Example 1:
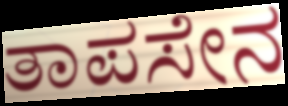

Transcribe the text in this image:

ತಾಪಸೇನ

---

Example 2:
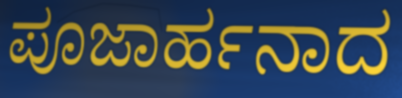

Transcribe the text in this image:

ಪೂಜಾರ್ಹನಾದ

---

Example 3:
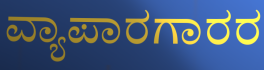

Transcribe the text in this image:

ವ್ಯಾಪಾರಗಾರರ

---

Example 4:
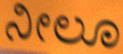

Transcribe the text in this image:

ನೀಲೂ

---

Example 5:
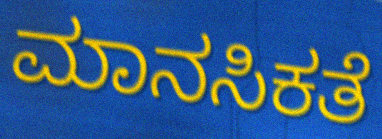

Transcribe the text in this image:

ಮಾನಸಿಕತೆ